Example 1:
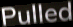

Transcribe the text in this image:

Pulled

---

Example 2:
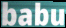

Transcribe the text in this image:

babu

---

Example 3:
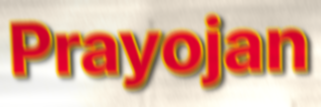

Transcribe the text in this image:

Prayojan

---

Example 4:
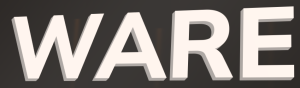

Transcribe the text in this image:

WARE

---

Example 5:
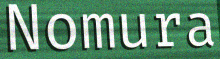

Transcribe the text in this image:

Nomura